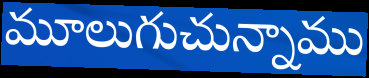
మూలుగుచున్నాము